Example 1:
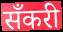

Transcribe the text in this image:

सँकरी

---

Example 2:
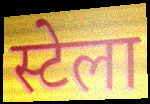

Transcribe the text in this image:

स्टेला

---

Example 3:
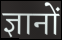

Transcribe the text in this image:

ज्ञानों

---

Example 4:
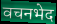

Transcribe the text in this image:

वचनभेद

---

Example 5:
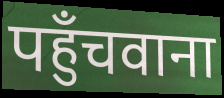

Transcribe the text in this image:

पहुँचवाना